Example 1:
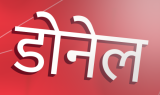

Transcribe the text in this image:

डोनेल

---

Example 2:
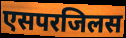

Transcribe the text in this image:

एसपरजिलस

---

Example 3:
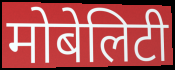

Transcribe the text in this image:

मोबेलिटी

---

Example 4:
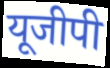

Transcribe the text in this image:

यूजीपी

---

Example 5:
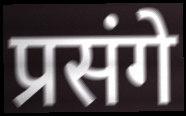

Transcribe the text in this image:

प्रसंगे